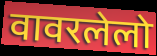
वावरलेलो